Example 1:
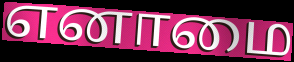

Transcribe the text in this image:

எனாமை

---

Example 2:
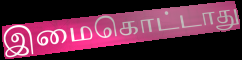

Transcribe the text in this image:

இமைகொட்டாது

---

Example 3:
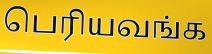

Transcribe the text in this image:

பெரியவங்க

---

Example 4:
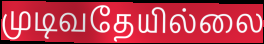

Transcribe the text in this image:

முடிவதேயில்லை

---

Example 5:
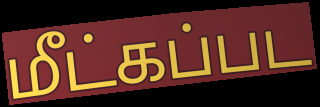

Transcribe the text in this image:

மீட்கப்பட